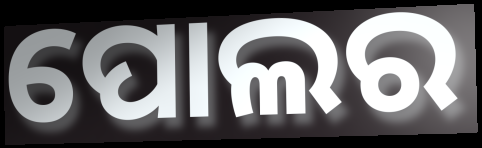
ପୋଲର